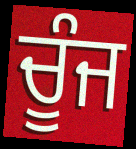
ਚੂੰਜ